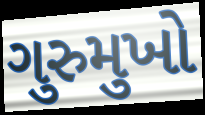
ગુરુમુખો